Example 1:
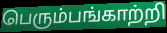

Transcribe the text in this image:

பெரும்பங்காற்றி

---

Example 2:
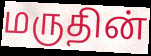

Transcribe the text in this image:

மருதின்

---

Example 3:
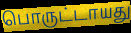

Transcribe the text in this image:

பொருட்டாயது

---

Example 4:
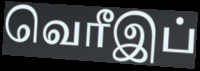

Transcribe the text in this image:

வெரீஇப்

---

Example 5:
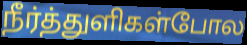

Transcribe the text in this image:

நீர்த்துளிகள்போல